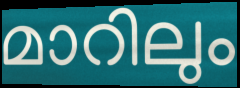
മാറിലും